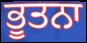
ਭੂਤਨਾ